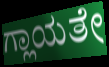
ಗ್ಲಾಯತೇ